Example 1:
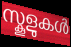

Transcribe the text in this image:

സ്കൂളുകൾ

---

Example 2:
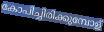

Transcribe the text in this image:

കോപിച്ചിരിക്കുമ്പോള്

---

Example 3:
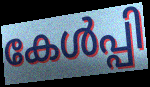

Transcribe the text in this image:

കേൾപ്പി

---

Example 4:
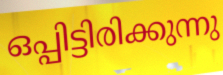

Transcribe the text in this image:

ഒപ്പിട്ടിരിക്കുന്നു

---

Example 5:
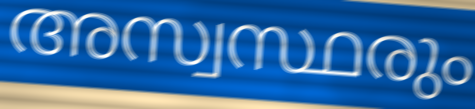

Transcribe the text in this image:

അസ്വസ്ഥരും